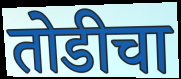
तोडीचा